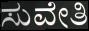
ಸುವೇತಿ